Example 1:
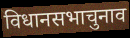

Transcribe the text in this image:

विधानसभाचुनाव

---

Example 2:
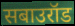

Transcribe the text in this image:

सबाउरॉड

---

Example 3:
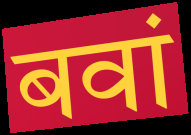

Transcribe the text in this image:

बवां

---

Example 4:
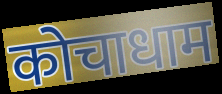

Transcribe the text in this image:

कोचाधाम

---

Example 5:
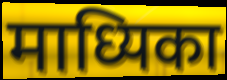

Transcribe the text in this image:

माध्यिका